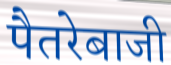
पैतरेबाजी